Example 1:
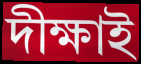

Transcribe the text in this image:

দীক্ষাই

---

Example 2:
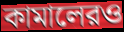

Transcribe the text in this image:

কামালেরও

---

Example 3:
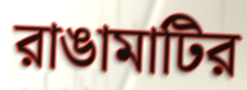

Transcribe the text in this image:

রাঙামাটির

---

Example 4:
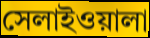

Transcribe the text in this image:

সেলাইওয়ালা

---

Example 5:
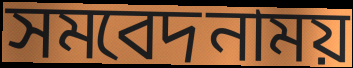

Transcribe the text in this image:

সমবেদনাময়